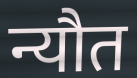
न्यौत